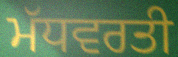
ਮੱਧਵਰਤੀ